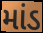
માંડ